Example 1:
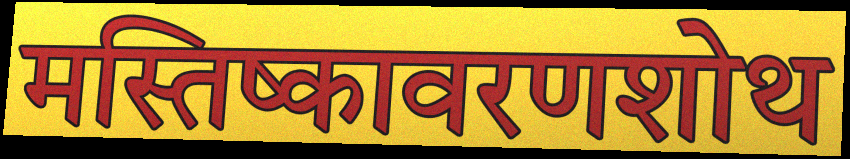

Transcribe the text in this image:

मस्तिष्कावरणशोथ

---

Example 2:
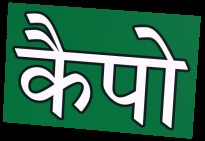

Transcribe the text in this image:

कैपो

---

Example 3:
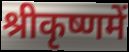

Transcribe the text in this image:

श्रीकृष्णमें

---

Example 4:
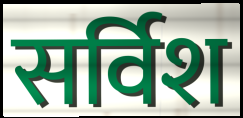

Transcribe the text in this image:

सर्विश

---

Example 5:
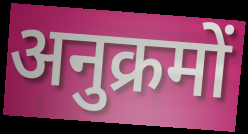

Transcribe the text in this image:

अनुक्रमों